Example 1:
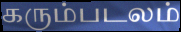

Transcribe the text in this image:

கரும்படலம்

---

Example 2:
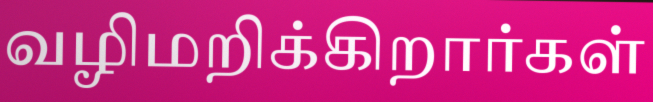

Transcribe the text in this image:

வழிமறிக்கிறார்கள்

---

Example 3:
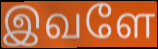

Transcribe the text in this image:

இவளே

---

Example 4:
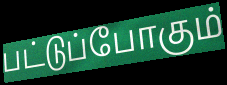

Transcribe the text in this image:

பட்டுப்போகும்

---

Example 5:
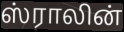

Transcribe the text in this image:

ஸ்ராலின்